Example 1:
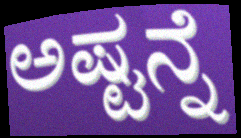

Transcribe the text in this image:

ಅಷ್ಟನ್ನೆ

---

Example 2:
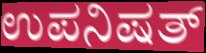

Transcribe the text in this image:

ಉಪನಿಷತ್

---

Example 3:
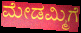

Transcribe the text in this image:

ಮೇಡಮ್ಮಿಗೆ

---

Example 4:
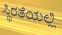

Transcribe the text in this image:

ಸ್ಥಿರತೆಯಲ್ಲಿ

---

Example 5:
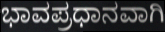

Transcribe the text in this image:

ಭಾವಪ್ರಧಾನವಾಗಿ